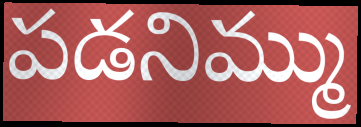
పడనిమ్ము